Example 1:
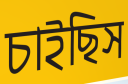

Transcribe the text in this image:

চাইছিস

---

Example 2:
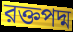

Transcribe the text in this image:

রক্তপদ্ম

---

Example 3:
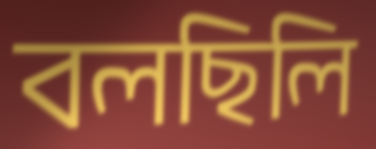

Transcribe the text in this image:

বলছিলি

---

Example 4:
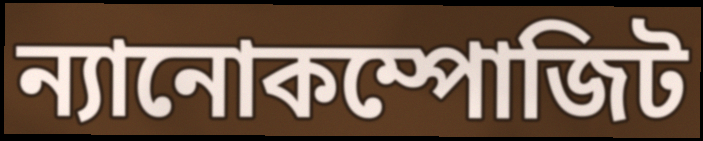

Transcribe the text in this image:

ন্যানোকম্পোজিট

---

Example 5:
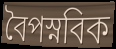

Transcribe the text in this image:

বৈপস্নবিক